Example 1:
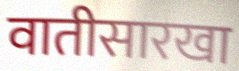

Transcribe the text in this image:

वातीसारखा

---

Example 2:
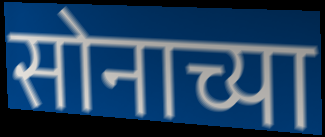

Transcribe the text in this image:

सोनाच्या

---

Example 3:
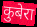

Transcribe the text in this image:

कुबेरा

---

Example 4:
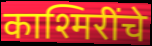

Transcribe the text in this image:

काश्मिरींचे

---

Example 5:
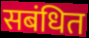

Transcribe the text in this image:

सबंधित